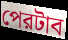
পেরটাব